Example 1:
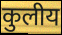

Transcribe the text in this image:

कुलीय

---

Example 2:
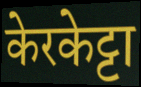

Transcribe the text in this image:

केरकेट्टा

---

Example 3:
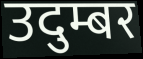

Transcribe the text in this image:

उदुम्बर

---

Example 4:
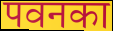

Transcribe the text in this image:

पवनका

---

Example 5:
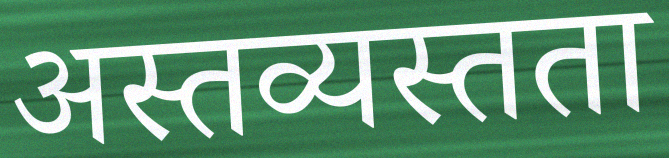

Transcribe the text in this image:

अस्तव्यस्तता